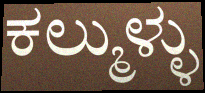
ಕಲ್ಮುಳ್ಳು